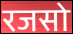
रजसो